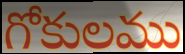
గోకులము